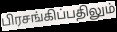
பிரசங்கிப்பதிலும்